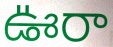
ఊరా